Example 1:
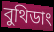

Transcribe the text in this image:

বুথিডাং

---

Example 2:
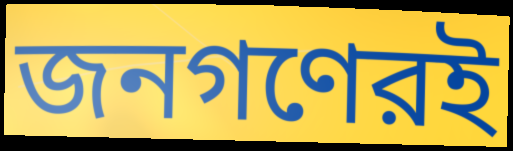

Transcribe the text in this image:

জনগণেরই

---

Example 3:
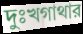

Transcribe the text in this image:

দুঃখগাথার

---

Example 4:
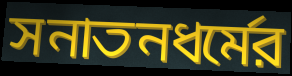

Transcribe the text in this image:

সনাতনধর্মের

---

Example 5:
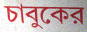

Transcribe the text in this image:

চাবুকের